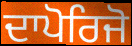
ਦਾਪੋਰਿਜੋ